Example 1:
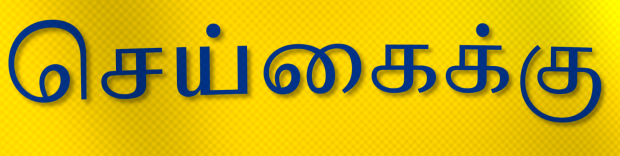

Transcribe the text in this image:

செய்கைக்கு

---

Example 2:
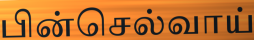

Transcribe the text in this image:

பின்செல்வாய்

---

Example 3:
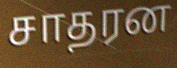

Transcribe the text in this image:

சாதரன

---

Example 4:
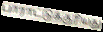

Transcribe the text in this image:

பாராட்டுக்குரியது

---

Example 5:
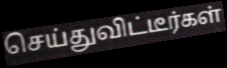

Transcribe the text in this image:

செய்துவிட்டீர்கள்